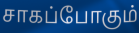
சாகப்போகும்